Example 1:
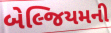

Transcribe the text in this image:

બેલ્જિયમની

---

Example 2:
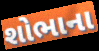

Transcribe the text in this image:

શોભાના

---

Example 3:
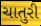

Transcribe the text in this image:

ચાતુરી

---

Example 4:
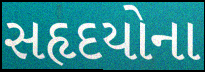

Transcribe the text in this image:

સહૃદયોના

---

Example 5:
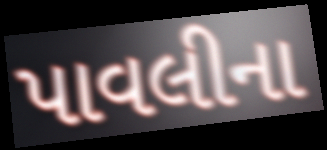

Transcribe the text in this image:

પાવલીના